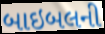
બાઇબલની